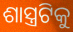
ଶାସ୍ତ୍ରଟିକୁ